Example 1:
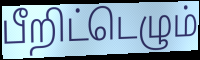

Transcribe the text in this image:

பீறிட்டெழும்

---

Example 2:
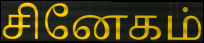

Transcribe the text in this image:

சினேகம்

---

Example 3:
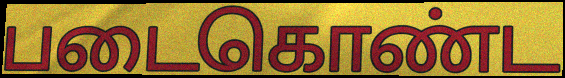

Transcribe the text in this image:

படைகொண்ட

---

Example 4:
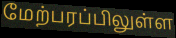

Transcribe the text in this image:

மேற்பரப்பிலுள்ள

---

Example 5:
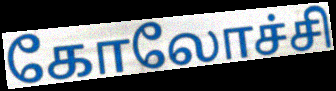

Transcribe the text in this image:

கோலோச்சி